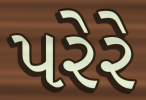
પરેરે